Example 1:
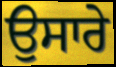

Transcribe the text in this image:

ਉਸਾਰੇ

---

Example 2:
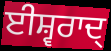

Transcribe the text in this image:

ਈਸ਼੍ਵਰਾਦ੍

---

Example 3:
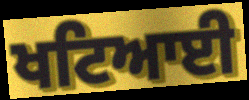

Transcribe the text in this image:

ਖਟਿਆਈ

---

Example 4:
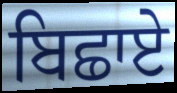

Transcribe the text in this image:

ਬਿਛਾਏ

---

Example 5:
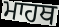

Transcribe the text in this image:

ਮਾਹਥ